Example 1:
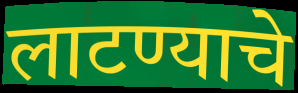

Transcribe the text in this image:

लाटण्याचे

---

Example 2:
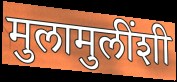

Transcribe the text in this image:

मुलामुलींशी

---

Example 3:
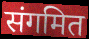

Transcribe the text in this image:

संगमित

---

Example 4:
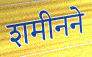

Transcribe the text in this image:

शमीनने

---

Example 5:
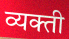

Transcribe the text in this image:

व्यक्‍ती